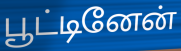
பூட்டினேன்